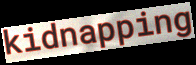
kidnapping